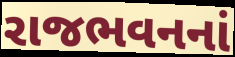
રાજભવનનાં